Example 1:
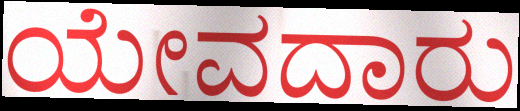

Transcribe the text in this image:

ಯೇವದಾರು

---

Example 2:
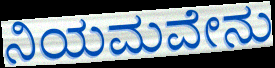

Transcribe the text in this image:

ನಿಯಮವೇನು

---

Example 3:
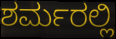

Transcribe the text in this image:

ಶರ್ಮರಲ್ಲಿ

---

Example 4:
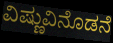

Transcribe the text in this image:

ವಿಷ್ಣುವಿನೊಡನೆ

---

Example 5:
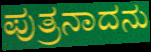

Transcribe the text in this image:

ಪುತ್ರನಾದನು